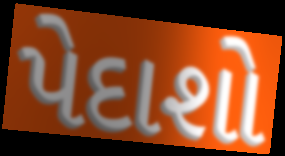
પેદાશો